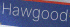
Hawgood